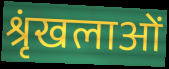
श्रृंखलाओं